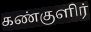
கண்குளிர்